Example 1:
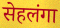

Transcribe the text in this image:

सेहलंगा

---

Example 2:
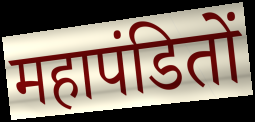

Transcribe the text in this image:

महापंडितों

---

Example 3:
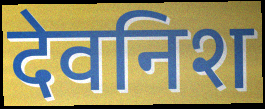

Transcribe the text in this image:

देवनिश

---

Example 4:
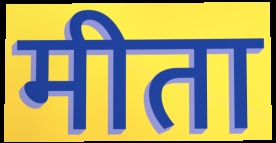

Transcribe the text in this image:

मीता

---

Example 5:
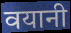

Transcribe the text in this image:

वयानी